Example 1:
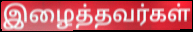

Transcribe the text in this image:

இழைத்தவர்கள்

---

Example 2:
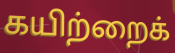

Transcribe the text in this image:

கயிற்றைக்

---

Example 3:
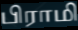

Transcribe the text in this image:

பிராமி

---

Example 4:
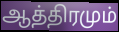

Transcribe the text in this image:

ஆத்திரமும்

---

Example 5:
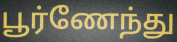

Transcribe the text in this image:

பூர்ணேந்து